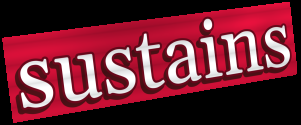
sustains